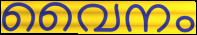
വൈനം